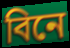
বিনে